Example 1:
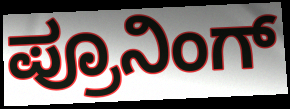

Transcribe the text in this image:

ಪ್ರೂನಿಂಗ್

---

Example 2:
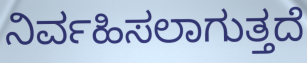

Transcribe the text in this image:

ನಿರ್ವಹಿಸಲಾಗುತ್ತದೆ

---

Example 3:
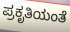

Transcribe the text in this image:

ಪ್ರಕೃತಿಯಂತೆ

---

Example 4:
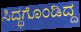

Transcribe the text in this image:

ಸಿದ್ಧಗೊಂಡಿದ್ದ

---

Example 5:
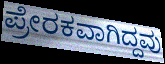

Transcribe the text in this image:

ಪ್ರೇರಕವಾಗಿದ್ದವು